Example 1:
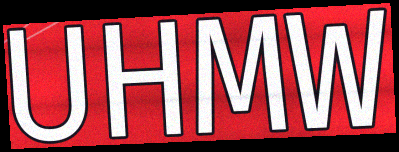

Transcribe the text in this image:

UHMW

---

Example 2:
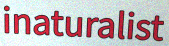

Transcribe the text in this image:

inaturalist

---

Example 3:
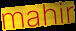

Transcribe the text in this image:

mahir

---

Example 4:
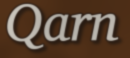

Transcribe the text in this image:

Qarn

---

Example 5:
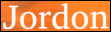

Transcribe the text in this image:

Jordon